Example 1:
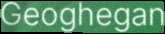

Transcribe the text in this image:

Geoghegan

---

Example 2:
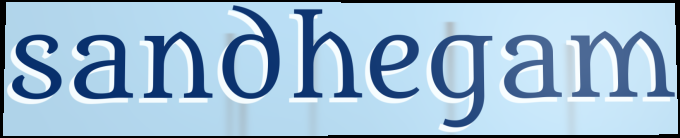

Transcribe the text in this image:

sandhegam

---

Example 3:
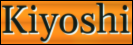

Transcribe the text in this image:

Kiyoshi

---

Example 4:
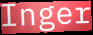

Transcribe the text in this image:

Inger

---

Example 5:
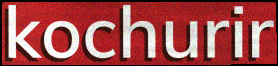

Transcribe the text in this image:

kochurir